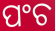
ପଂଚ